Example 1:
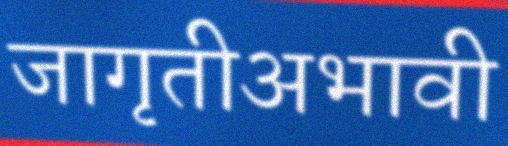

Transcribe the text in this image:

जागृतीअभावी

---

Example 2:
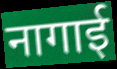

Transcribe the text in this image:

नागाई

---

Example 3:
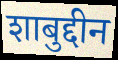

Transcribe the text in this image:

शाबुद्दीन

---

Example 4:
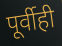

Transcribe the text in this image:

पूर्वीही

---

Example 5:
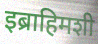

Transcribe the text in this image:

इब्राहिमशी